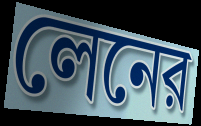
লেনের